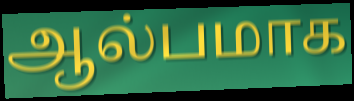
ஆல்பமாக